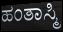
ಹಂತಾಸ್ಮಿ